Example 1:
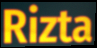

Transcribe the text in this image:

Rizta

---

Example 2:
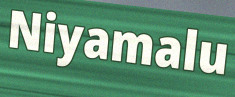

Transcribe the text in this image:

Niyamalu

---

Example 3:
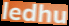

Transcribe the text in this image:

ledhu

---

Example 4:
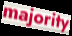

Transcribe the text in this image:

majority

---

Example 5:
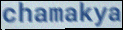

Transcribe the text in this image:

chamakya